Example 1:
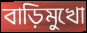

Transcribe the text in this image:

বাড়িমুখো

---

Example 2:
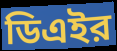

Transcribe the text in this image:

ডিএইর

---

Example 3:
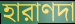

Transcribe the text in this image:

হারাণদা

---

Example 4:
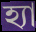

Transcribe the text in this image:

হ্যা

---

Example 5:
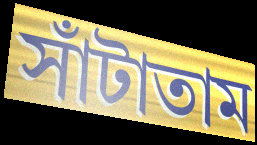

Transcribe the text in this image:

সাঁটাতাম